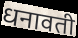
धनावती